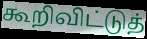
கூறிவிட்டுத்